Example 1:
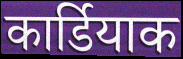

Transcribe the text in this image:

कार्डियाक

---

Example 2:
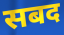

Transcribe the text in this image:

सबद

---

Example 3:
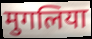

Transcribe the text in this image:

मुगलिया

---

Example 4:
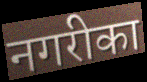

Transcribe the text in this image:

नगरीका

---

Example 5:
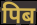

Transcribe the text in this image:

पिब